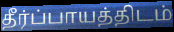
தீர்ப்பாயத்திடம்